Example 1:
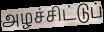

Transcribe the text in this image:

அழச்சிட்டுப்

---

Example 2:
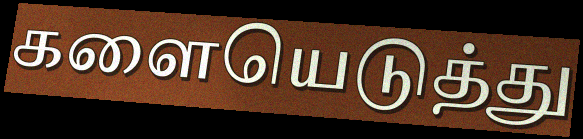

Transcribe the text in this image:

களையெடுத்து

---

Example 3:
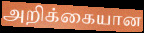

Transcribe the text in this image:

அறிக்கையான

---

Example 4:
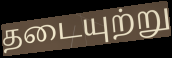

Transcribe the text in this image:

தடையுற்று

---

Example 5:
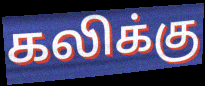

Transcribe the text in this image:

கலிக்கு